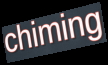
chiming